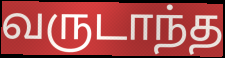
வருடாந்த